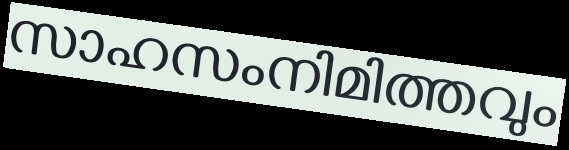
സാഹസംനിമിത്തവും